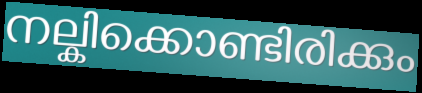
നല്കിക്കൊണ്ടിരിക്കും